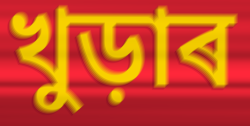
খুড়াৰ